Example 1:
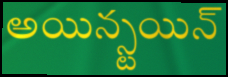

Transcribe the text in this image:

అయిన్స్టయిన్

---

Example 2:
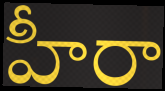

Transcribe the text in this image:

హీరా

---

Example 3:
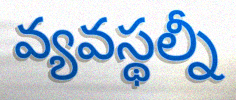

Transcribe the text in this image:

వ్యవస్థల్నీ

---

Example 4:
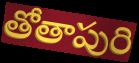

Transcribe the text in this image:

తోతాపురి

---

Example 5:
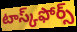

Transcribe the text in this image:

టాస్క్‌ఫోర్స్